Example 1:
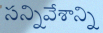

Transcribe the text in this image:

సన్నివేశాన్ని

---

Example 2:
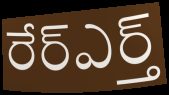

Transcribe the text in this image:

రేర్ఎర్త్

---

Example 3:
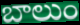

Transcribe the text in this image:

బాలుం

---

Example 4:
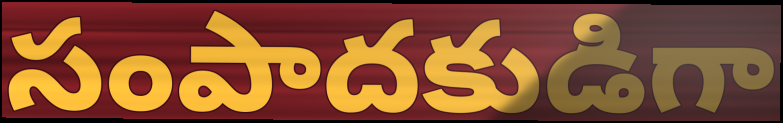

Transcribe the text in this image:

సంపాదకుడిగా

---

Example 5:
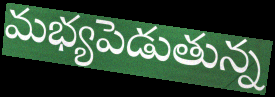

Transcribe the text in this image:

మభ్యపెడుతున్న